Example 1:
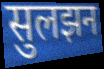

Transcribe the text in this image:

सुलझन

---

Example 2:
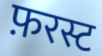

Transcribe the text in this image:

फ़रस्ट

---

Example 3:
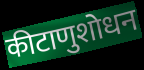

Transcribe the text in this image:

कीटाणुशोधन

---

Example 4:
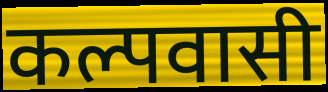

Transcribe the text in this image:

कल्पवासी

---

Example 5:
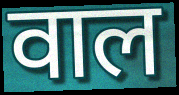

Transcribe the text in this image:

वाल